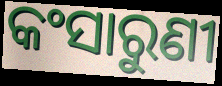
କଂସାରୁଣୀ